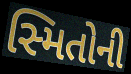
સ્મિતોની